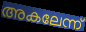
അകലേന്ന്